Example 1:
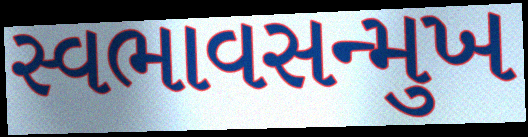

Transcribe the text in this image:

સ્વભાવસન્મુખ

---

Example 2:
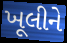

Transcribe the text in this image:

ખૂલીને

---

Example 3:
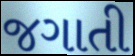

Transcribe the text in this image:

જગાતી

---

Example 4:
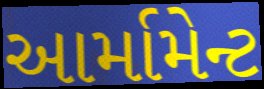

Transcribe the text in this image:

આર્મામેન્ટ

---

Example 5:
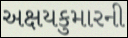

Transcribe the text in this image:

અક્ષયકુમારની